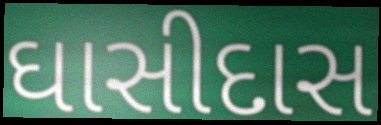
ઘાસીદાસ